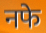
नफे